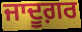
ਜਾਦੂਗ਼ਰ